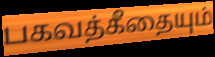
பகவத்கீதையும்